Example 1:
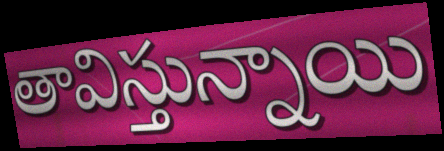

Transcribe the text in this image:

తావిస్తున్నాయి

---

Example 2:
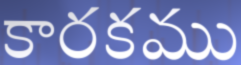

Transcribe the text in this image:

కారకము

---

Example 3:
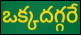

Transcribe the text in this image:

ఒక్కదగ్గరే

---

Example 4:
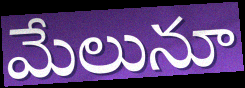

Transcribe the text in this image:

మేలునూ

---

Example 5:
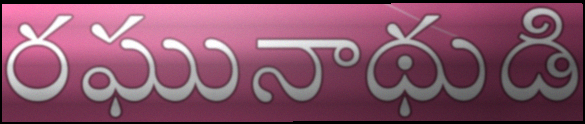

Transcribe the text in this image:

రఘునాథుడి